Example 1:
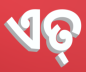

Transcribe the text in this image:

ଏତ୍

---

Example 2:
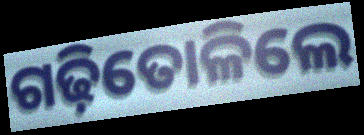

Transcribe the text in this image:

ଗଢ଼ିତୋଳିଲେ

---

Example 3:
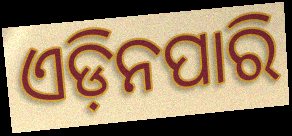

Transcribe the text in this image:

ଏଡ଼ିନପାରି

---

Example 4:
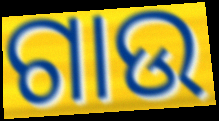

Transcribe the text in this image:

ଗାଉ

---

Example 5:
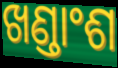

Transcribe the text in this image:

ଖଣ୍ଡାଂଶ